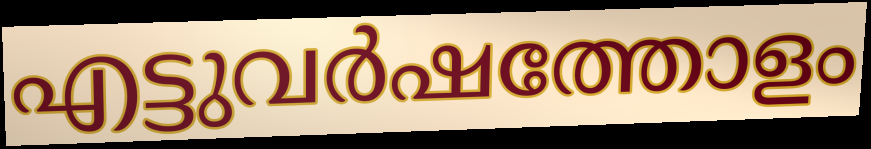
എട്ടുവർഷത്തോളം